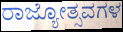
ರಾಜ್ಯೋತ್ಸವಗಳ